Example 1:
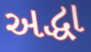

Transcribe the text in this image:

અદ્ધા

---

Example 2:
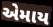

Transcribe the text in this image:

એમાય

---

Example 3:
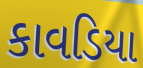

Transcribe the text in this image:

કાવડિયા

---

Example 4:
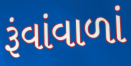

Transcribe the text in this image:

રૂંવાંવાળાં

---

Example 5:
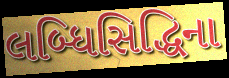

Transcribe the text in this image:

લબ્ધિસિદ્ધિના